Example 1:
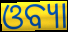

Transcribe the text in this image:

ଓବ୍ୟା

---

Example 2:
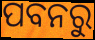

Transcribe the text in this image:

ପବନରୁ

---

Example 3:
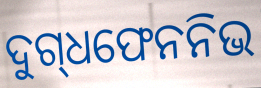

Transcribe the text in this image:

ଦୁଗ୍‍ଧଫେନନିଭ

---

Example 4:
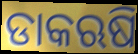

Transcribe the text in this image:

ଡାକଋଷି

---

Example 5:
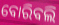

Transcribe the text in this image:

ବୋରିବଲି